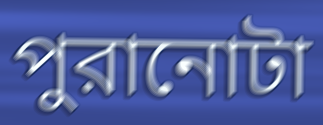
পুরানোটা